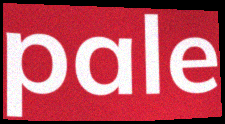
pale